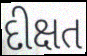
દીક્ષત